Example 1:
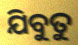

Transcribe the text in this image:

ଯିବୁତୁ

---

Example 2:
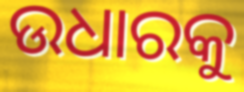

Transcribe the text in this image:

ଉଧାରକୁ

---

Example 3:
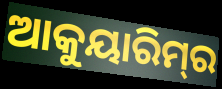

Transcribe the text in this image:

ଆକୁୟାରିମ୍‌ର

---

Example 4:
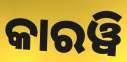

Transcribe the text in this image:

କାରୱି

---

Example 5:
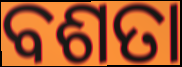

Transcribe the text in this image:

ବଶତା